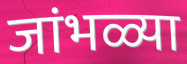
जांभळ्या